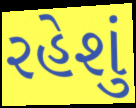
રહેશું